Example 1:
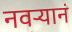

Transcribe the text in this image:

नवऱ्यानं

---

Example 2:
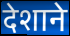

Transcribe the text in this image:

देशाने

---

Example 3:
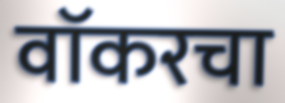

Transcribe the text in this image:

वॉकरचा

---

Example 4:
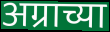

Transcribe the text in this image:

अग्राच्या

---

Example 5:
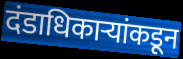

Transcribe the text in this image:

दंडाधिकाऱ्यांकडून